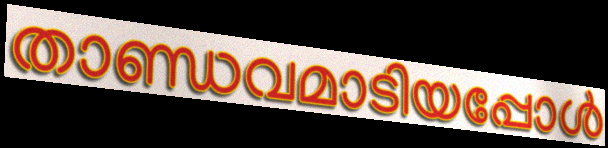
താണ്ഡവമാടിയപ്പോൾ